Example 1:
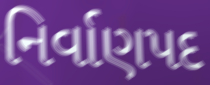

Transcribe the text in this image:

નિર્વાણપદ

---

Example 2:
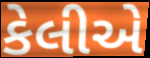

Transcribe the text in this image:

કેલીએ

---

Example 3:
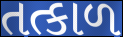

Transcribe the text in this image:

તત્કાળ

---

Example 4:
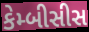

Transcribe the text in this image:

કેમ્બીસીસ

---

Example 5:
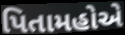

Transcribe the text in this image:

પિતામહોએ